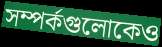
সম্পর্কগুলোকেও